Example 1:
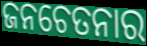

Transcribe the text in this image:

ଜନଚେତନାର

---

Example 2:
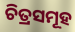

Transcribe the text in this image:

ଚିତ୍ରସମୂହ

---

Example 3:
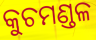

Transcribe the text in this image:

କୁଚମଣ୍ଡଳ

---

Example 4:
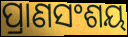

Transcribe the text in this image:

ପ୍ରାଣସଂଶୟ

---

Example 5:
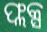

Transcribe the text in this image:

ଫ୍ଲକ୍ସ